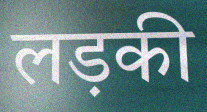
लड़की